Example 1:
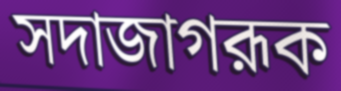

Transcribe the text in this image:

সদাজাগরূক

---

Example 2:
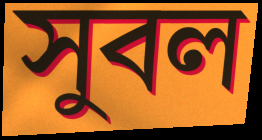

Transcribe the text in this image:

সুবল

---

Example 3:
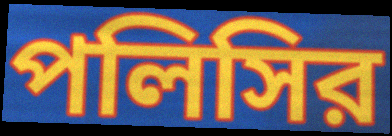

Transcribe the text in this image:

পলিসির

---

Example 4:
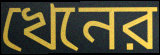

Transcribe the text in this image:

খেনের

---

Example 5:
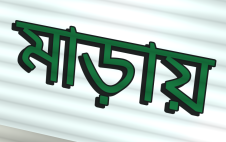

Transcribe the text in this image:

মাড়ায়